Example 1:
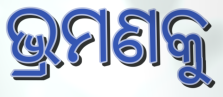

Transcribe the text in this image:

ଭ୍ରମଣକୁ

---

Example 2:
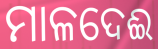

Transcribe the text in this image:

ମାଳଦେଈ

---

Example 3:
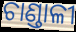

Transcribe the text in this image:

ଚାଣ୍ଡାଳୀ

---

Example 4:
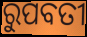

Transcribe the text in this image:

ରୁପବତୀ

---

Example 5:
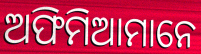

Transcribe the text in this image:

ଅଫିମିଆମାନେ